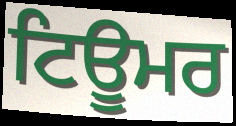
ਟਿਊਮਰ